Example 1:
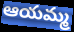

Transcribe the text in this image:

ఆయమ్మ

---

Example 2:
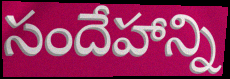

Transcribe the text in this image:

సందేహాన్ని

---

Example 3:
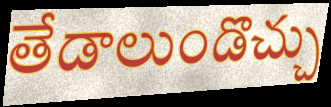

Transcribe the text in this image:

తేడాలుండొచ్చు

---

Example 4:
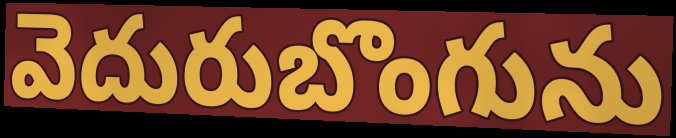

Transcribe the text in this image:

వెదురుబొంగును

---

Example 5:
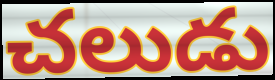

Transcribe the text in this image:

చలుడు